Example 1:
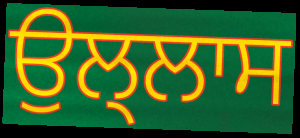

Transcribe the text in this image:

ਉਲ੍ਲਾਸ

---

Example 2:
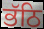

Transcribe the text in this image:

ਭੱਠਿ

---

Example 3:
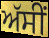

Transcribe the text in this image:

ਅੱਸੀਂ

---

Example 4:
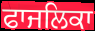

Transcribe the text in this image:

ਫਾਜਲਿਕਾ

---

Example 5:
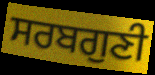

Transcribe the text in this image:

ਸਰਬਗੁਣੀ